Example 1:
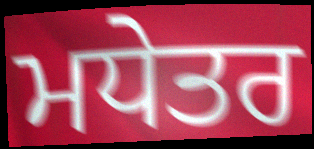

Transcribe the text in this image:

ਮਧੇਤਰ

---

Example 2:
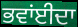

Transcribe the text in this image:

ਭਵਾਂਈਦਾ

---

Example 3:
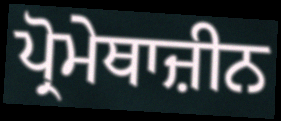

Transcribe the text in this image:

ਪ੍ਰੋਮੇਥਾਜ਼ੀਨ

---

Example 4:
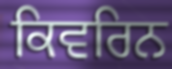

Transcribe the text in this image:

ਕਿਵਰਿਨ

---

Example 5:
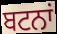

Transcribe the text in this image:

ਬਟਨਾਂ